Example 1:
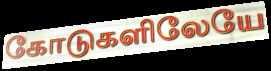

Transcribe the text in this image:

கோடுகளிலேயே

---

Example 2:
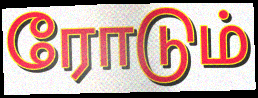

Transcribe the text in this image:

ரோடும்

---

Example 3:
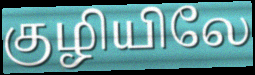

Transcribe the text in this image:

குழியிலே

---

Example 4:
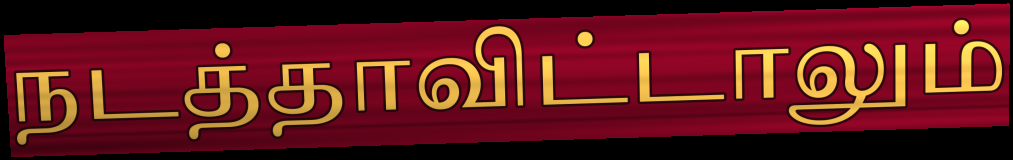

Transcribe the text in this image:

நடத்தாவிட்டாலும்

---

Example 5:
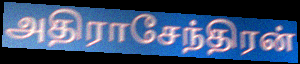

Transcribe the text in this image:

அதிராசேந்திரன்